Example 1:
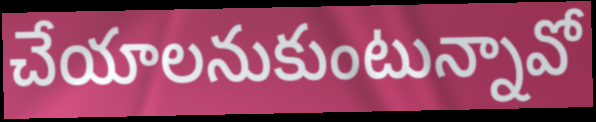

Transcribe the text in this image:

చేయాలనుకుంటున్నావో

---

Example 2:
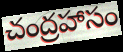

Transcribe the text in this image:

చంద్రహాసం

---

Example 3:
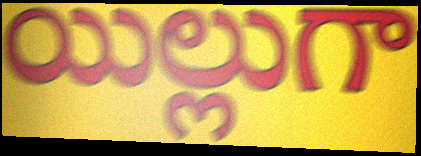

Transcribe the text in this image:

యిల్లుగా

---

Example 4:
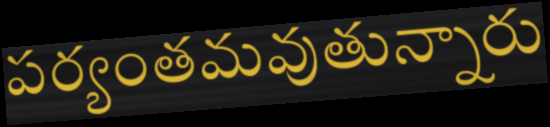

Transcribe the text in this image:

పర్యంతమవుతున్నారు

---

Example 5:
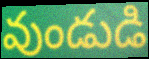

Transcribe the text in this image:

వుండుడి